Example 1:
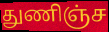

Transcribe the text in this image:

துணிஞ்ச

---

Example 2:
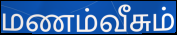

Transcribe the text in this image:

மணம்வீசும்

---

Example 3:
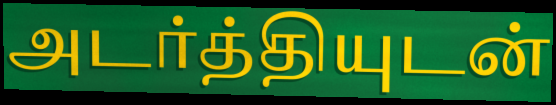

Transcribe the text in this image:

அடர்த்தியுடன்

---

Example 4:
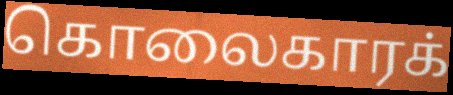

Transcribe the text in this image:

கொலைகாரக்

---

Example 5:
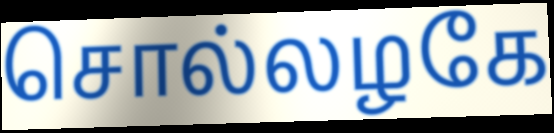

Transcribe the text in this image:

சொல்லழகே